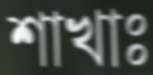
শাখাঃ